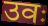
उवः